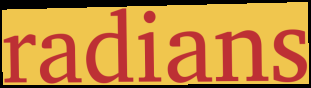
radians